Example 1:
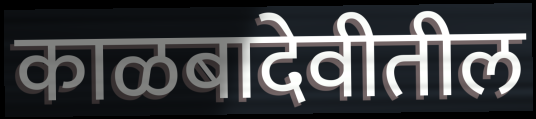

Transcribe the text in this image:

काळबादेवीतील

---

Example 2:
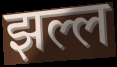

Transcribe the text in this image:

झल्ल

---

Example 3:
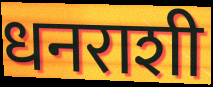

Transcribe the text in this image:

धनराशी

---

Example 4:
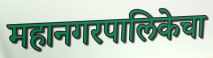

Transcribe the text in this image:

महानगरपालिकेचा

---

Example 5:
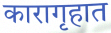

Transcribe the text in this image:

कारागृहात